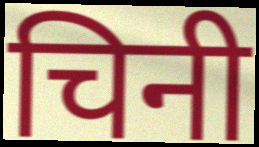
चिनी